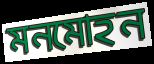
মনমোহন